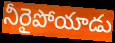
నీరైపోయాడు